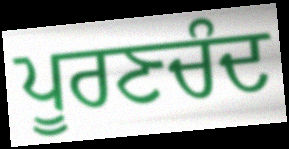
ਪੂਰਣਚੰਦ